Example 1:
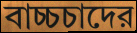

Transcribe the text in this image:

বাচ্চচাদের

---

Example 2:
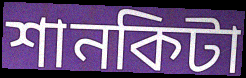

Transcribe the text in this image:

শানকিটা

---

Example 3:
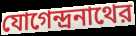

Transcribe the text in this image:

যোগেন্দ্রনাথের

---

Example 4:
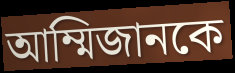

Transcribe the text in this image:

আম্মিজানকে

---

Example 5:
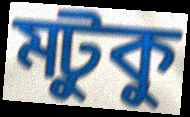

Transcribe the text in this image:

মটুকু